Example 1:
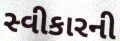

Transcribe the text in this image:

સ્વીકારની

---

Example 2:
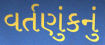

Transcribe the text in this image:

વર્તણુંકનું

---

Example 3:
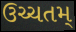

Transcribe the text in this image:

ઉચ્ચતમ્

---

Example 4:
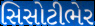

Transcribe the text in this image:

સિસોટીભેર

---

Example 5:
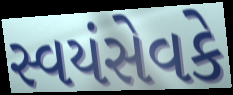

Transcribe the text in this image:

સ્વયંસેવકે